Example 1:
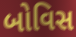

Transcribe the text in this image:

બોવિસ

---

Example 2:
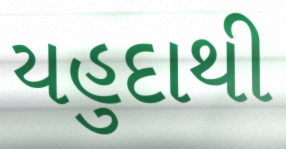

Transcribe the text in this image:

યહુદાથી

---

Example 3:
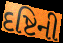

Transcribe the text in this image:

દષ્ટિની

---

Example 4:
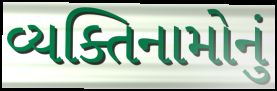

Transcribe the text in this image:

વ્યક્તિનામોનું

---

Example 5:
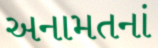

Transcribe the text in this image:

અનામતનાં